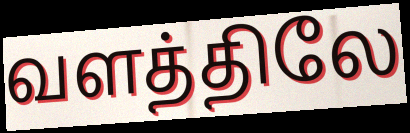
வளத்திலே